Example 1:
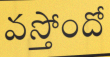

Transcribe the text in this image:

వస్తోందో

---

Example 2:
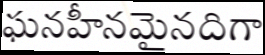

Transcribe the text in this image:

ఘనహీనమైనదిగా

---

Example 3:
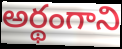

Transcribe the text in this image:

అర్థంగాని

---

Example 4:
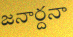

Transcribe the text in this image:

జనార్దనా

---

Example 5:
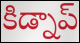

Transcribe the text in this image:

కిడ్నాప్